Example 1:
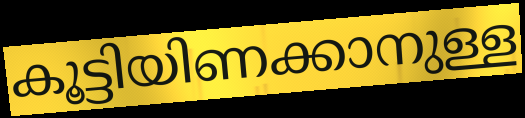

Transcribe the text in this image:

കൂട്ടിയിണക്കാനുള്ള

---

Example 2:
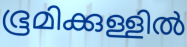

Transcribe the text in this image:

ഭൂമിക്കുള്ളിൽ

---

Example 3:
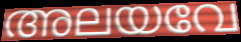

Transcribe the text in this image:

അലയവേ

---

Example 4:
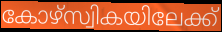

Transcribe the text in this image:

കോഴ്സ്വികയിലേക്ക്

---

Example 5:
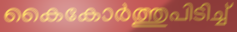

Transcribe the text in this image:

കൈകോർത്തുപിടിച്ച്